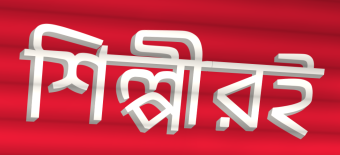
শিল্পীরই